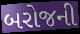
બરોજની